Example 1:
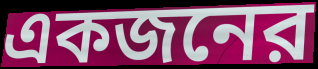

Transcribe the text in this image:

একজনের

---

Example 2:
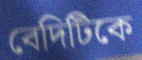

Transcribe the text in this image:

বেদিটিকে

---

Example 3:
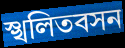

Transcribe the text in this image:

স্খলিতবসন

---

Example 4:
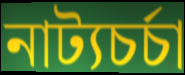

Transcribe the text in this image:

নাট্যচর্চা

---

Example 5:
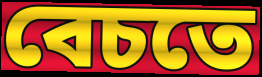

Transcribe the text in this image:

বেচতে